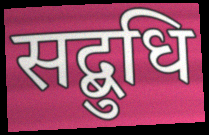
सद्बुधि